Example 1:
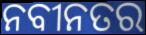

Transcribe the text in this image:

ନବୀନତର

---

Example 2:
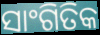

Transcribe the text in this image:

ସାଂଗିତିକ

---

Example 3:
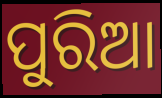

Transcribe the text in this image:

ପୁରିଆ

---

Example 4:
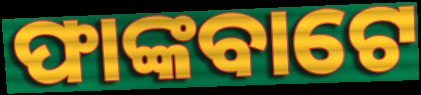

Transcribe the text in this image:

ଫାଙ୍କବାଟେ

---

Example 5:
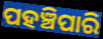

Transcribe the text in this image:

ପହଞ୍ଚିପାରି